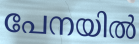
പേനയിൽ